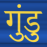
गुंडु